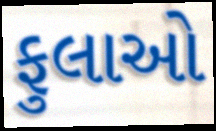
ફુલાઓ